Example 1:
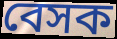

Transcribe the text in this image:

বেসক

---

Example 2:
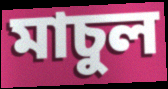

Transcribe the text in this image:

মাচুল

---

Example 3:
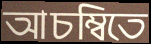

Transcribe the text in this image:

আচম্বিতে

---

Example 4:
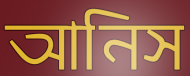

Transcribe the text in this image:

আনিস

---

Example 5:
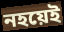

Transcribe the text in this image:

নহয়েই